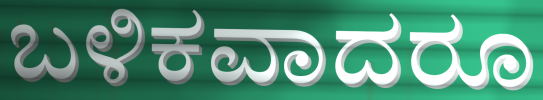
ಬಳಿಕವಾದರೂ